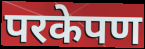
परकेपण